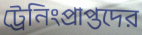
ট্রেনিংপ্রাপ্তদের